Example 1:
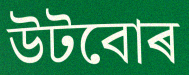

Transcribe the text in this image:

উটবোৰ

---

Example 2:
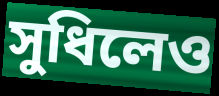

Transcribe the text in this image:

সুধিলেও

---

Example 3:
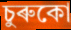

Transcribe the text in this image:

চুৰুকো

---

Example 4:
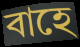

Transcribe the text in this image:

বাহে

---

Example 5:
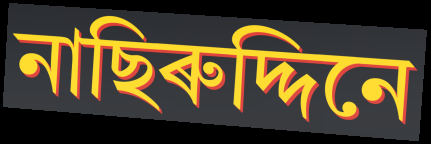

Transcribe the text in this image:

নাছিৰুদ্দিনে